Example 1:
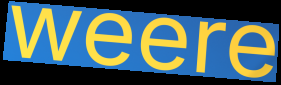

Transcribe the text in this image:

weere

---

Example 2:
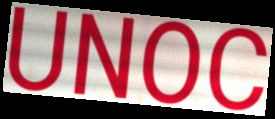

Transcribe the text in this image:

UNOC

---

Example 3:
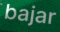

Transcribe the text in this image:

bajar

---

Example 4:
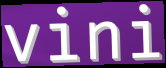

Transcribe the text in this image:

vini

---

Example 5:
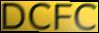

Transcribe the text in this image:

DCFC